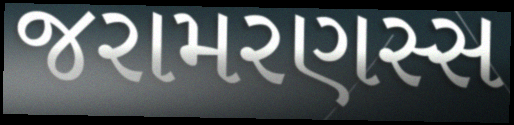
જરામરણસ્સ